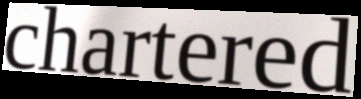
chartered